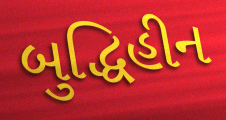
બુદ્ધિહીન